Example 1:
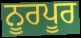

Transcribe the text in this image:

ਨੂਰਪੂਰ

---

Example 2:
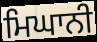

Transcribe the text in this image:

ਮਿਘਾਨੀ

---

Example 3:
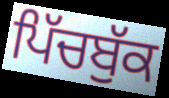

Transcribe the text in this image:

ਪਿੱਚਬੁੱਕ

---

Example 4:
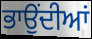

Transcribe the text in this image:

ਭਾਉਂਦੀਆਂ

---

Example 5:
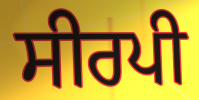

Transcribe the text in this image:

ਸੀਰਪੀ